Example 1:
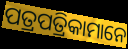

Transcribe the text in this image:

ପତ୍ରପତ୍ରିକାମାନେ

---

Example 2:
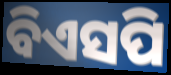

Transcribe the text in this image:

ବିଏସପି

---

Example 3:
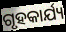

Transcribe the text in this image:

ଗୃହକାର୍ଯ୍ୟ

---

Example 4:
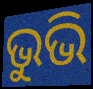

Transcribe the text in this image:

ଭୁଭି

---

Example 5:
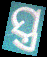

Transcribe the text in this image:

ସ୍ତ୍ର